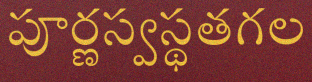
పూర్ణస్వస్థతగల